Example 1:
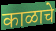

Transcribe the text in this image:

काळाचे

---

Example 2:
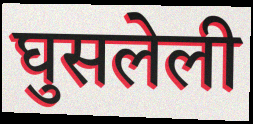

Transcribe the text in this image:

घुसलेली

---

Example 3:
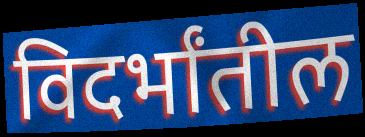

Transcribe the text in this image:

विदर्भांतील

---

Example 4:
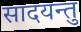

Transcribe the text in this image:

सादयन्तु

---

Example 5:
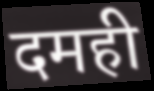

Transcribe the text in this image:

दमही